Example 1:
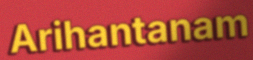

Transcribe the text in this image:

Arihantanam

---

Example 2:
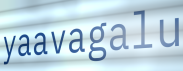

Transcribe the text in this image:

yaavagalu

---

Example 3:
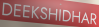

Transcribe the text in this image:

DEEKSHIDHAR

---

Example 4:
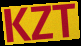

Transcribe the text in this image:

KZT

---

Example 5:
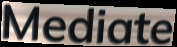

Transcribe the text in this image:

Mediate